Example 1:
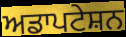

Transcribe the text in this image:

ਅਡਾਪਟੇਸ਼ਨ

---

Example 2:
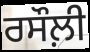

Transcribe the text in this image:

ਰਸੌਲ਼ੀ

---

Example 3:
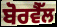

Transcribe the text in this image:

ਬੋਰਵੈੱਲ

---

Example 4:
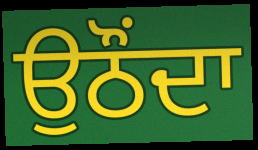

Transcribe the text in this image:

ਉਠੌਂਦਾ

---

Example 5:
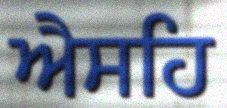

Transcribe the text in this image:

ਐਸਹਿ